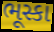
ભૂસ્કા